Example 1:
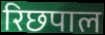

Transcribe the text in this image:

रिछपाल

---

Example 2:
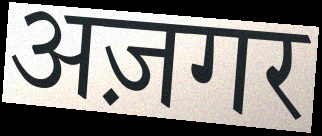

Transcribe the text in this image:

अज़गर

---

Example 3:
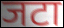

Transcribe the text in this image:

जटा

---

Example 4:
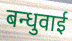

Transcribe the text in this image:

बन्धुवाई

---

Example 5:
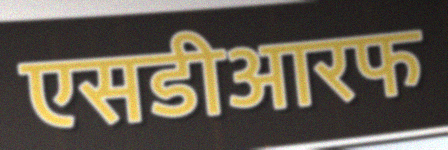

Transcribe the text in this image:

एसडीआरफ